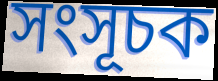
সংসূচক